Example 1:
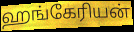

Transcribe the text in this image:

ஹங்கேரியன்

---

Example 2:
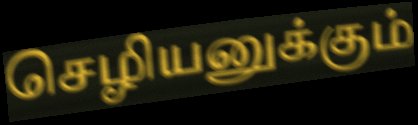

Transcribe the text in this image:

செழியனுக்கும்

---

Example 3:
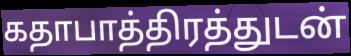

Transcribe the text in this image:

கதாபாத்திரத்துடன்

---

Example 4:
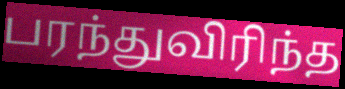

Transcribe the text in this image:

பரந்துவிரிந்த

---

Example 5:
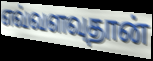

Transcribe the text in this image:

எவ்வளவுதான்